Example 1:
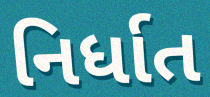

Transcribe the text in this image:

નિર્ધાત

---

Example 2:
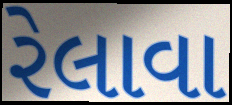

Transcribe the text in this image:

રેલાવા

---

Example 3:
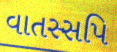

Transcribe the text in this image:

વાતસ્સપિ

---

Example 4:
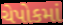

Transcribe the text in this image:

ચેપોકમાં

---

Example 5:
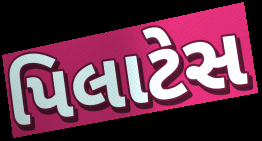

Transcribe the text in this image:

પિલાટેસ